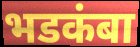
भडकंबा